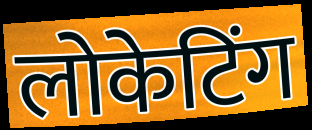
लोकेटिंग